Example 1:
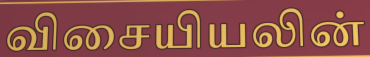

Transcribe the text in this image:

விசையியலின்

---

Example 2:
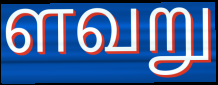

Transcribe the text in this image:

ளவறு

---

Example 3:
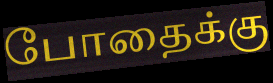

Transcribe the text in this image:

போதைக்கு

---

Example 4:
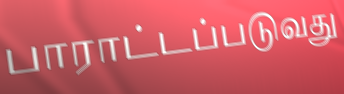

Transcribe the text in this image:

பாராட்டப்படுவது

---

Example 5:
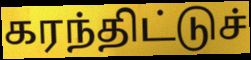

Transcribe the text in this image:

கரந்திட்டுச்